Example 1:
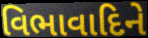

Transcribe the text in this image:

વિભાવાદિને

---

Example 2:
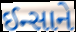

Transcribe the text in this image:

ઈન્સાને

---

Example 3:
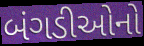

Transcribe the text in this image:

બંગડીઓનો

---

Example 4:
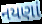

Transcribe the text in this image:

નયણાં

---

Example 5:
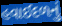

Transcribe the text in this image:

હવાઈદળનું